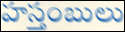
హస్తంబులు